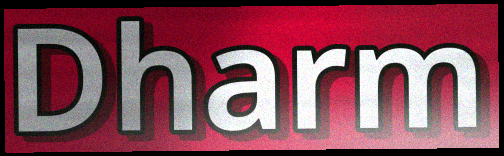
Dharm